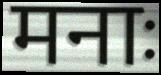
मनाः